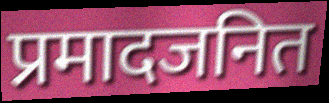
प्रमादजनित